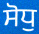
ਸੋਧੁ